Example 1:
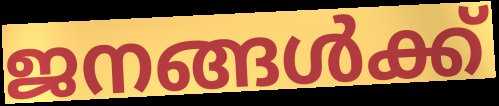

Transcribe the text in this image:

ജനങ്ങൾക്ക്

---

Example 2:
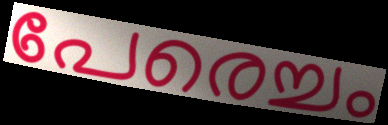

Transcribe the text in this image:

പേരെച്ചം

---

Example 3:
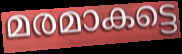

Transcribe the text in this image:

മരമാകട്ടെ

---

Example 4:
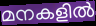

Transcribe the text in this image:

മനകളിൽ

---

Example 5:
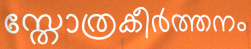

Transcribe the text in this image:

സ്തോത്രകീർത്തനം